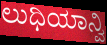
ಲುಧಿಯಾನ್ವಿ